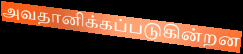
அவதானிக்கப்படுகின்றன